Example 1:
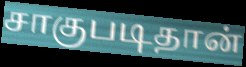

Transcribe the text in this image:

சாகுபடிதான்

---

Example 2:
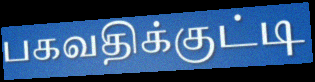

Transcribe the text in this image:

பகவதிக்குட்டி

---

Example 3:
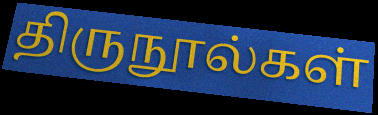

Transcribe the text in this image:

திருநூல்கள்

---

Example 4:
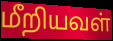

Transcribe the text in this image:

மீறியவள்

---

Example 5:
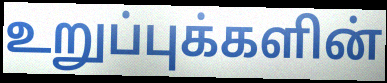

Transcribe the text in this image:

உறுப்புக்களின்